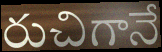
రుచిగానే